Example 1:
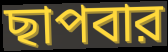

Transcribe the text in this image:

ছাপবার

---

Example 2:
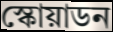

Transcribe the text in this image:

স্কোয়াডন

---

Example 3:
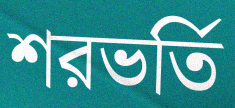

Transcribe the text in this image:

শরভর্তি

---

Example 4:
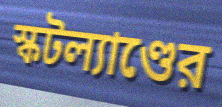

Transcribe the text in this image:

স্কটল্যাণ্ডের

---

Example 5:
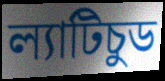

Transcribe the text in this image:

ল্যাটিচুড